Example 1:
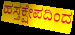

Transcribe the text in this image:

ಹಸ್ತಕ್ಷೇಪದಿಂದ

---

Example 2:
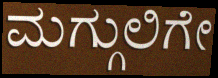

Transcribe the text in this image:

ಮಗ್ಗುಲಿಗೇ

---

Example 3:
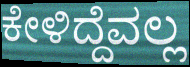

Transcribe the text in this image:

ಕೇಳಿದ್ದೆವಲ್ಲ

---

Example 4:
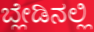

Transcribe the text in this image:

ಬ್ಲೇಡಿನಲ್ಲಿ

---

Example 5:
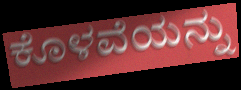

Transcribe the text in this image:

ಕೊಳವೆಯನ್ನು